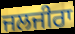
ਜਲਜੀਰਾ